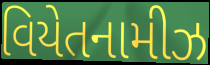
વિયેતનામીઝ